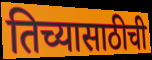
तिच्यासाठीची